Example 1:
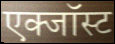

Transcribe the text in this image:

एक्जॉस्ट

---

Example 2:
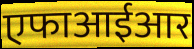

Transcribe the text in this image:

एफाआईआर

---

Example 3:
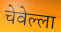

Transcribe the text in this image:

चेवेल्ला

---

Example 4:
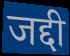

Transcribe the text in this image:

जद्दी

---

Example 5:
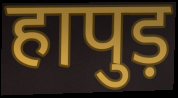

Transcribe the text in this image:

हापुड़